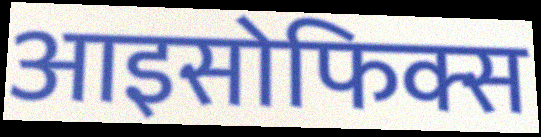
आइसोफिक्स